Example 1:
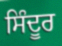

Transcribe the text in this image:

ਸਿੰਦੂਰ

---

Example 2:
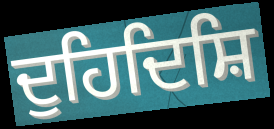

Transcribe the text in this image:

ਦੁਹਿਦਿਸ਼ਿ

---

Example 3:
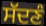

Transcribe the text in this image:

ਸੱਦਣੰ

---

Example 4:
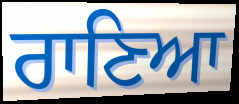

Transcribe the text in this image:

ਰਾਣਿਆ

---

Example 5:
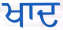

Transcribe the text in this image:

ਖਾਦ